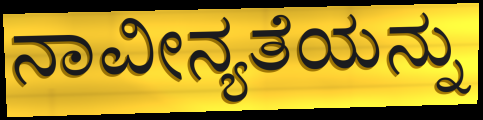
ನಾವೀನ್ಯತೆಯನ್ನು